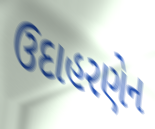
ઉદાહરણેન